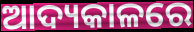
ଆଦ୍ୟକାଳରେ